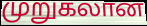
முறுகலான